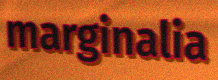
marginalia